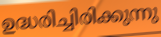
ഉദ്ധരിച്ചിരിക്കുന്നു